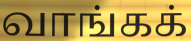
வாங்கக்